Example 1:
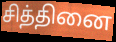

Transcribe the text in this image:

சித்தினை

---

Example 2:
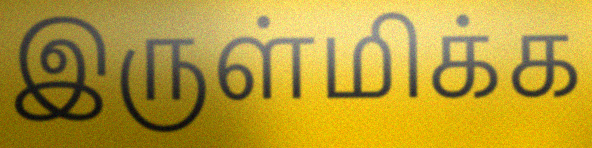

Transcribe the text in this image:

இருள்மிக்க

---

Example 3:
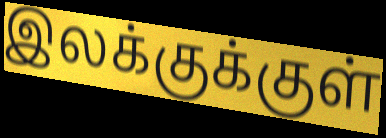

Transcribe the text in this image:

இலக்குக்குள்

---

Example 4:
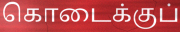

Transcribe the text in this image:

கொடைக்குப்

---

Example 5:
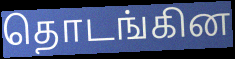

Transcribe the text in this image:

தொடங்கின